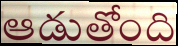
ఆడుతోంది